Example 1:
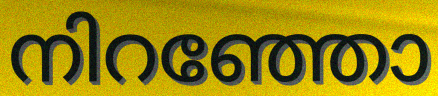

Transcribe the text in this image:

നിറഞ്ഞോ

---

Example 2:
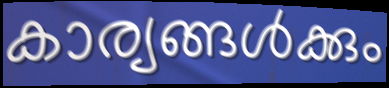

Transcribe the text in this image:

കാര്യങ്ങൾക്കും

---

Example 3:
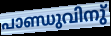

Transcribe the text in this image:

പാണ്ഡുവിനു്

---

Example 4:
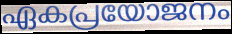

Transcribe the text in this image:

ഏകപ്രയോജനം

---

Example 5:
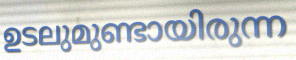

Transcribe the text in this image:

ഉടലുമുണ്ടായിരുന്ന